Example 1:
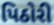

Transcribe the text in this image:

પિઠોરી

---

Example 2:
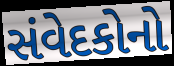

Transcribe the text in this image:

સંવેદકોનો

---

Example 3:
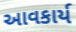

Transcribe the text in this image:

આવકાર્ય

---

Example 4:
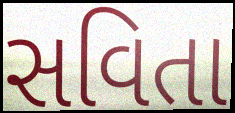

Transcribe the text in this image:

સવિતા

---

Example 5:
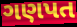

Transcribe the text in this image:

ગણપત